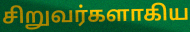
சிறுவர்களாகிய